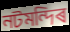
নটমন্দিৰ